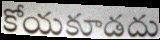
కోయకూడదు